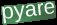
pyare